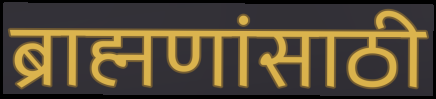
ब्राह्मणांसाठी